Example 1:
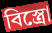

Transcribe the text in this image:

বিস্ত্রো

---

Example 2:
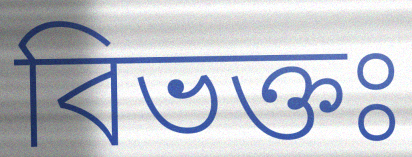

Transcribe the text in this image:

বিভক্তঃ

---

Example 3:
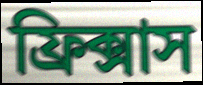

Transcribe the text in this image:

ফ্রিক্সাস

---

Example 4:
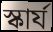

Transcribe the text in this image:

স্কার্য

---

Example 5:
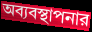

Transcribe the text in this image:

অব্যবস্থাপনার